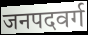
जनपदवर्ग